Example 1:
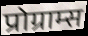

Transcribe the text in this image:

प्रोग्राम्‍स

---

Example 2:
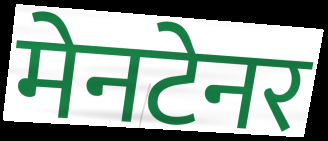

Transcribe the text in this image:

मेनटेनर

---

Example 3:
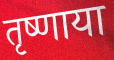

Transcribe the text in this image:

तृष्णाया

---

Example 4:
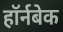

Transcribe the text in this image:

हॉर्नबेक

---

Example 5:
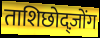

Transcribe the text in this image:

ताशिछोद्ज़ोंग